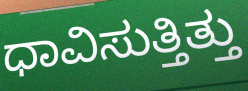
ಧಾವಿಸುತ್ತಿತ್ತು